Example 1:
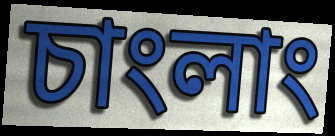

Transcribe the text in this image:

চাংলাং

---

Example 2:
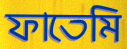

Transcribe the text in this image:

ফাতেমি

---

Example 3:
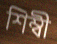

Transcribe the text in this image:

শিম্বী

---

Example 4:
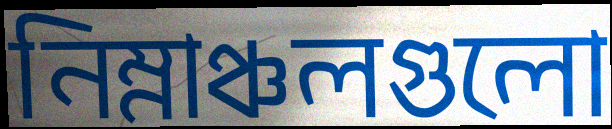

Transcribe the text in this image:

নিম্নাঞ্চলগুলো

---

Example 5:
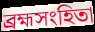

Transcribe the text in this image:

ব্রহ্মসংহিতা